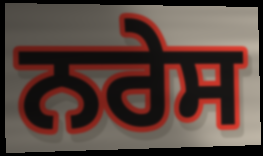
ਨਰੇਸ